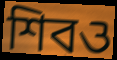
শিবও